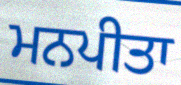
ਮਨਪੀਤਾ